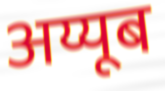
अय्यूब